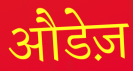
औडेज़